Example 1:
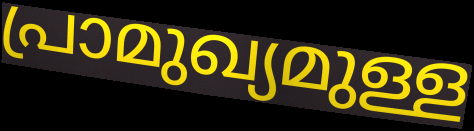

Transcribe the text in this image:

പ്രാമുഖ്യമുള്ള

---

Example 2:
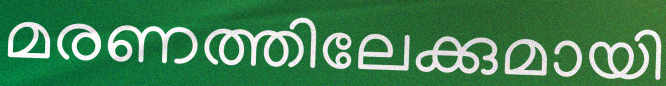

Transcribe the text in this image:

മരണത്തിലേക്കുമായി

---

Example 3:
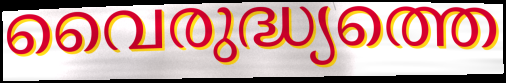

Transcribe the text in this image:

വൈരുദ്ധ്യത്തെ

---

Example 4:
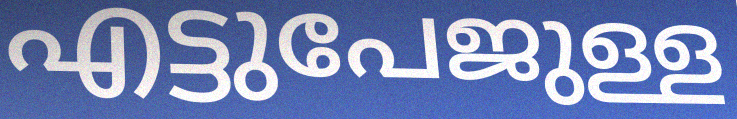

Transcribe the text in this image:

എട്ടുപേജുള്ള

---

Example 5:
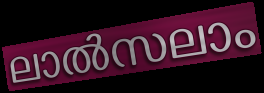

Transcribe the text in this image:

ലാൽസലാം